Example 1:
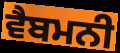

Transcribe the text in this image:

ਵੈਬਮਨੀ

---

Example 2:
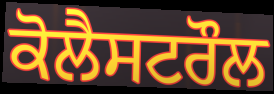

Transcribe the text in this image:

ਕੋਲੈਸਟਰੌਲ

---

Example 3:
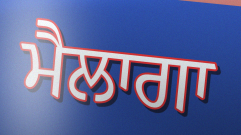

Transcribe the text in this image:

ਮੈਲਾਗਾ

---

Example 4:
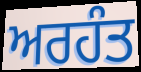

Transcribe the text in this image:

ਅਰਹੰਤ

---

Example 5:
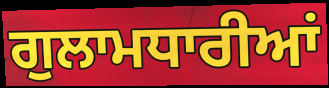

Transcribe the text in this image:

ਗੁਲਾਮਧਾਰੀਆਂ